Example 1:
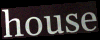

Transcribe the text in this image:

house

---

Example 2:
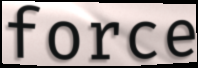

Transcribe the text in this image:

force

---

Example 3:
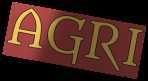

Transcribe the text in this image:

AGRI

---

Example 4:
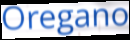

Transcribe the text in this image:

Oregano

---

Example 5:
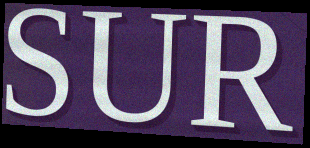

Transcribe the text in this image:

SUR